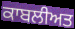
ਕਾਬਲੀਅਤ